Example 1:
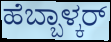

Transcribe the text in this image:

ಹೆಬ್ಬಾಳ್ಕರ್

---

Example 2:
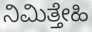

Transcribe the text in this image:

ನಿಮಿತ್ತೇಹಿ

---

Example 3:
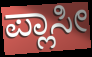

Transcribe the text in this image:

ಪ್ಲಾಸೀ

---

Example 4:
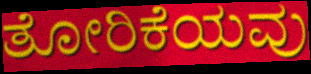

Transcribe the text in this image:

ತೋರಿಕೆಯವು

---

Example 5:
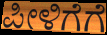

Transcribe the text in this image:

ಪೀಳಿಗೆಗೆ